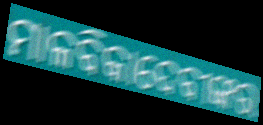
ମାଳବିକାଦେବୀଙ୍କର